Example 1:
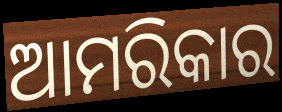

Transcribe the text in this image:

ଆମରିକାର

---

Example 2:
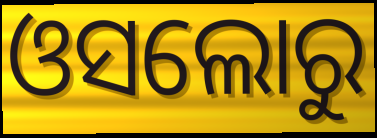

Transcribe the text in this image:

ଓସଲୋରୁ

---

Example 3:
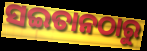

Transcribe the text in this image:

ସଇତାନଠାରୁ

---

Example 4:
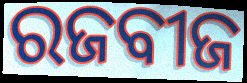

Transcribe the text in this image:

ରଜବୀଜ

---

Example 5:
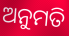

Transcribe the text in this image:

ଅନୁମତି